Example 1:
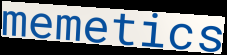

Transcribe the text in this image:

memetics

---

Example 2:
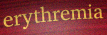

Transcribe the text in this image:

erythremia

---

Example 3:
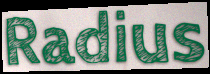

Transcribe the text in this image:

Radius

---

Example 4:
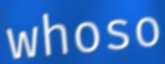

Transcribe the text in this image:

whoso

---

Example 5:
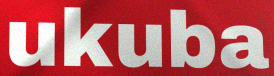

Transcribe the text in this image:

ukuba